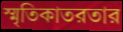
স্মৃতিকাতরতার